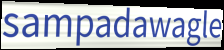
sampadawagle